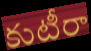
కుటీరా